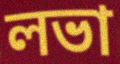
লভা